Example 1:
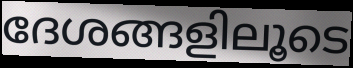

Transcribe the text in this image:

ദേശങ്ങളിലൂടെ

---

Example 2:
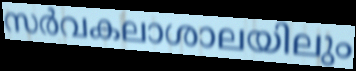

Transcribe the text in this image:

സർവകലാശാലയിലും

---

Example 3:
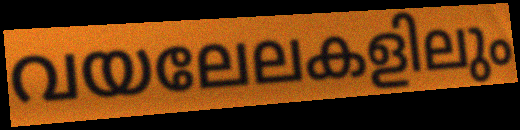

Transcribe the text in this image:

വയലേലകളിലും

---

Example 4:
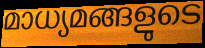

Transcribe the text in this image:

മാധ്യമങ്ങളുടെ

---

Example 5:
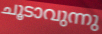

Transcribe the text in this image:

ചൂടാവുന്നു